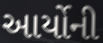
આર્યોની